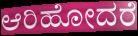
ಆರಿಹೋದರೆ